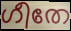
ഗീതേ